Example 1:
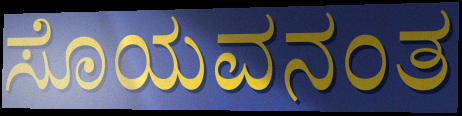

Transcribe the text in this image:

ಸೊಯವನಂತ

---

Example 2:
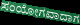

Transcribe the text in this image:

ಸಂಯೋಗವಾದಾಗ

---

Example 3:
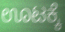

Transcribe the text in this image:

ಊಟಕ್ಕೆ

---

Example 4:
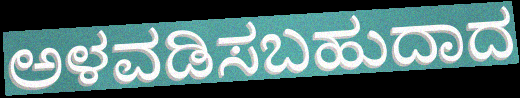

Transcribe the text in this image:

ಅಳವಡಿಸಬಹುದಾದ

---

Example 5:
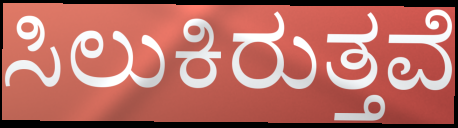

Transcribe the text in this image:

ಸಿಲುಕಿರುತ್ತವೆ